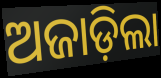
ଅଜାଡ଼ିଲା